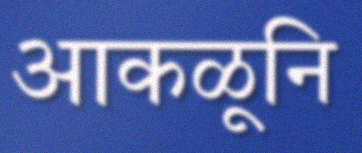
आकळूनि